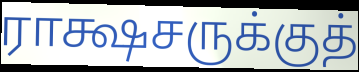
ராக்ஷசருக்குத்